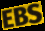
EBS